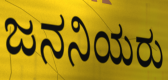
ಜನನಿಯರು